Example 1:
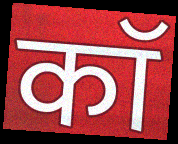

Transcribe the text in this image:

कॉ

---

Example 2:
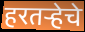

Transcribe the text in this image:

हरतऱ्हेचे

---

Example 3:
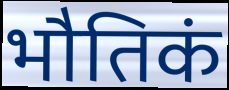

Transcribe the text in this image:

भौतिकं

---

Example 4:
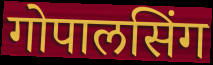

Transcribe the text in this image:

गोपालसिंग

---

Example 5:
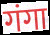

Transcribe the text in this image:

गंगा